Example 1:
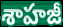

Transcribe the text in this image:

శాహజీ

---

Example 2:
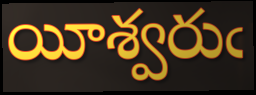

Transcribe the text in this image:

యీశ్వరుఁ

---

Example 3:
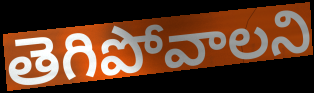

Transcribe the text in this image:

తెగిపోవాలని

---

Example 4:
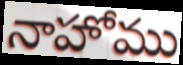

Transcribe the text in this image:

నాహోము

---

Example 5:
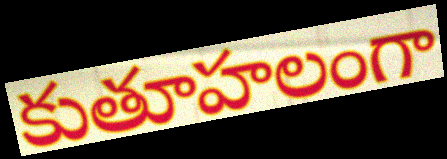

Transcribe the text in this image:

కుతూహలంగా